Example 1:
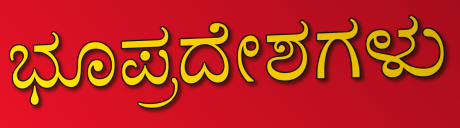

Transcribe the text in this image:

ಭೂಪ್ರದೇಶಗಳು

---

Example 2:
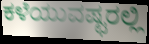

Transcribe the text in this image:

ಕಳೆಯುವಷ್ಟರಲ್ಲಿ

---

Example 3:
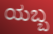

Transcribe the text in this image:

ಯಬ್ಬ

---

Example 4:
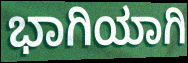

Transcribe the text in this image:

ಭಾಗಿಯಾಗಿ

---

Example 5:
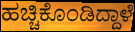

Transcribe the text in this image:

ಹಚ್ಚಿಕೊಂಡಿದ್ದಾಳೆ